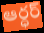
ఆర్ధర్